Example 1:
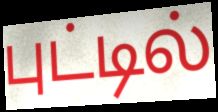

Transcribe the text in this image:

புட்டில்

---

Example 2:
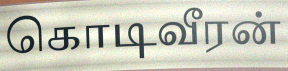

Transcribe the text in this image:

கொடிவீரன்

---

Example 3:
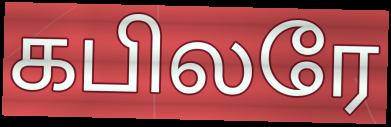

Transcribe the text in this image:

கபிலரே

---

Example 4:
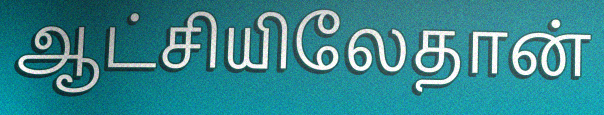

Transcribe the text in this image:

ஆட்சியிலேதான்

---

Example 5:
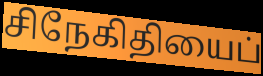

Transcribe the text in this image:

சிநேகிதியைப்